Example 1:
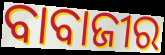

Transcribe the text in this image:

ବାବାଜୀର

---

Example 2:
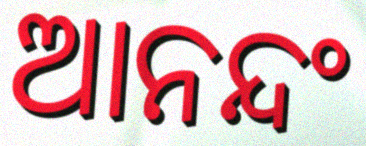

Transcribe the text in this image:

ଆନନ୍ଦଂ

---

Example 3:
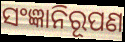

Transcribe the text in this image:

ସଂଜ୍ଞାନିରୂପଣ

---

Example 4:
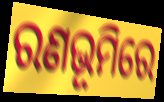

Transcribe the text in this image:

ରଣଭୂମିରେ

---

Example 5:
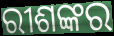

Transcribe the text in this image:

ରୀଶଙ୍କର